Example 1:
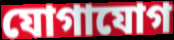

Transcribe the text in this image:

যোগাযোগ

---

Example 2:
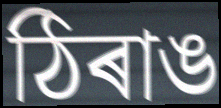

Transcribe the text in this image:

ঠিৰাঙ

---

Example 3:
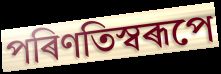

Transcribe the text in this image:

পৰিণতিস্বৰূপে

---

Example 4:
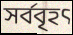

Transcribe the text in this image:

সৰ্ববৃহৎ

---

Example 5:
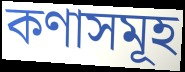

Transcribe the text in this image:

কণাসমূহ